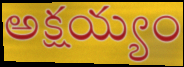
అక్షయ్యం